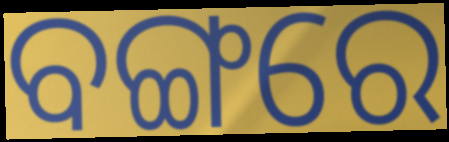
ବଙ୍ଗରେ